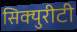
सिक्युरीटी